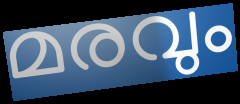
മരവും